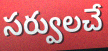
సర్వులచే